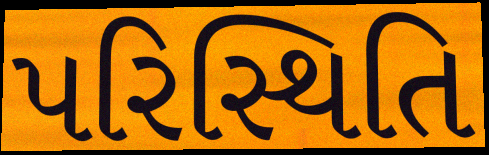
પરિસ્થિતિ